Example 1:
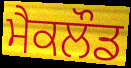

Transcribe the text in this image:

ਮੈਕਲੌਡ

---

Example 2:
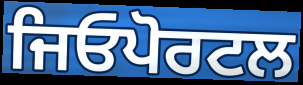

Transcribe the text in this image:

ਜਿਓਪੋਰਟਲ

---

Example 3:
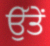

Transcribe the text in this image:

ਉੱਤੇਂ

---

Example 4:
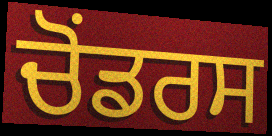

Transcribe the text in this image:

ਚੋਂਡਰਸ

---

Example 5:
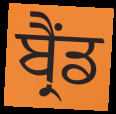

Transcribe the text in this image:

ਬ੍ਰੈਂਡ